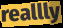
reallly